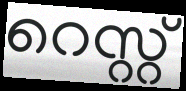
റെസ്റ്റ്